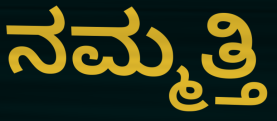
ನಮ್ಮತ್ತಿ